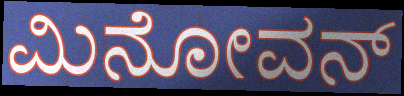
ಮಿನೋವನ್